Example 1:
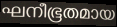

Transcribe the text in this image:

ഘനീഭൂതമായ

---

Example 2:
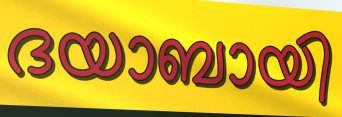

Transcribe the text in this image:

ദയാബായി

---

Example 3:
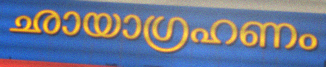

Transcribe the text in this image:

ഛായാഗ്രഹണം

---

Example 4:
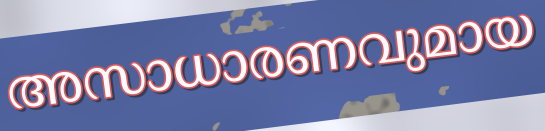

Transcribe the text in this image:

അസാധാരണവുമായ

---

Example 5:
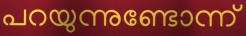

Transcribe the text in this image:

പറയുന്നുണ്ടോന്ന്